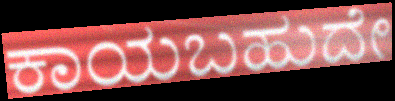
ಕಾಯಬಹುದೇ